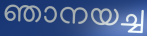
ഞാനയച്ച